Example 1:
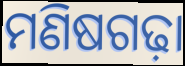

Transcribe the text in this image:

ମଣିଷଗଢ଼ା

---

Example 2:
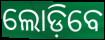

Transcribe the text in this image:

ଲୋଡ଼ିବେ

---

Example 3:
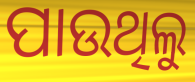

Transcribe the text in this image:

ପାଉଥିଲୁ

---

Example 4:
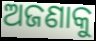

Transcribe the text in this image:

ଅଜଣାକୁ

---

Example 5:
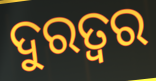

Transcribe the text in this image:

ଦୁରତ୍ଵର